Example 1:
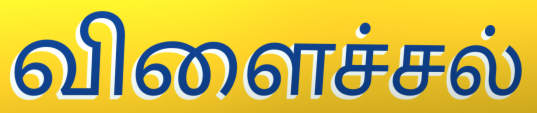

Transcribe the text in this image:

விளைச்சல்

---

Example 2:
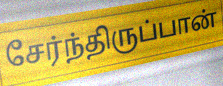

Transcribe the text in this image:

சேர்ந்திருப்பான்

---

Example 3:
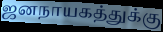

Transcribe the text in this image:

ஜனநாயகத்துக்கு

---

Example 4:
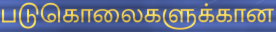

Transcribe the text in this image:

படுகொலைகளுக்கான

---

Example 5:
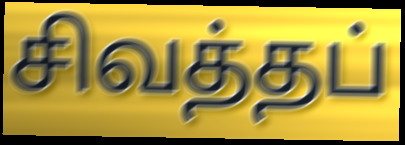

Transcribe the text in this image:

சிவத்தப்